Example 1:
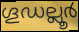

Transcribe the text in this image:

ഗൂഡല്ലൂർ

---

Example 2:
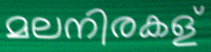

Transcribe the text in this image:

മലനിരകള്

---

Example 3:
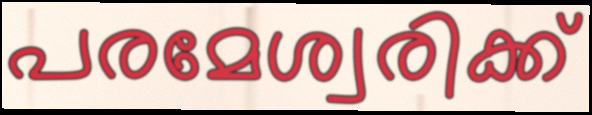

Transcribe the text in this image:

പരമേശ്വരിക്ക്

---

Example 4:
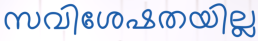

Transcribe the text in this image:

സവിശേഷതയില്ല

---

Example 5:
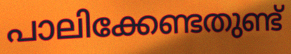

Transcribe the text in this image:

പാലിക്കേണ്ടതുണ്ട്